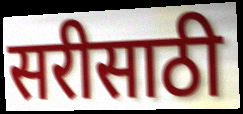
सरीसाठी